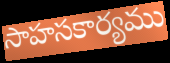
సాహసకార్యము